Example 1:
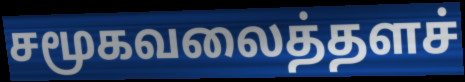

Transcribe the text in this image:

சமூகவலைத்தளச்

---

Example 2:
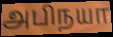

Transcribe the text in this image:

அபிநயா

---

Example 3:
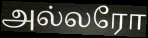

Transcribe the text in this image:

அல்லரோ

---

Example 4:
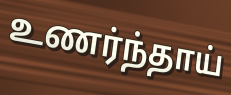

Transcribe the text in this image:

உணர்ந்தாய்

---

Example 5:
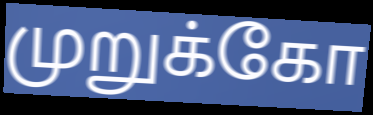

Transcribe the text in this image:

முறுக்கோ